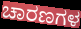
ಚಾರಣಗಳ